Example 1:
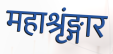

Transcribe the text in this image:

महाश्रृंङ्गार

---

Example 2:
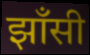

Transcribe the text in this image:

झाँसी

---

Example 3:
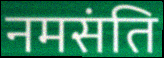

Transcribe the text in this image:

नमसंति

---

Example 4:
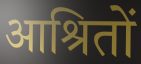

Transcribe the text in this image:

आश्रितों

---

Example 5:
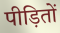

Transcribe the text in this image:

पीड़ितों